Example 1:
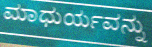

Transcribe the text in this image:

ಮಾಧುರ್ಯವನ್ನು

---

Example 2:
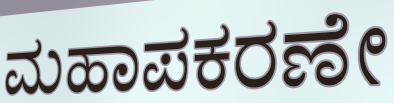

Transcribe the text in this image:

ಮಹಾಪಕರಣೇ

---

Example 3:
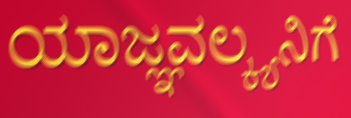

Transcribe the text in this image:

ಯಾಜ್ಞವಲ್ಕ್ಯನಿಗೆ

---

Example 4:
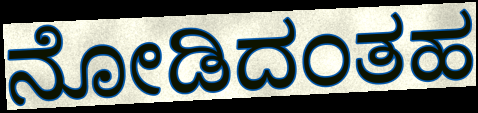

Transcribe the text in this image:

ನೋಡಿದಂತಹ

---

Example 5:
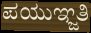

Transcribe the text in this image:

ಪಯುಞ್ಜತಿ